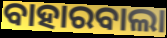
ବାହାରବାଲା